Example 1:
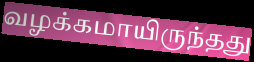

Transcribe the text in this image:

வழக்கமாயிருந்தது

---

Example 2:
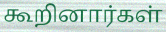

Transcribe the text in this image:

கூறினார்கள்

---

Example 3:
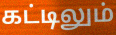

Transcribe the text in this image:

கட்டிலும்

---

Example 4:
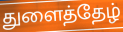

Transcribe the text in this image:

துளைத்தேழ்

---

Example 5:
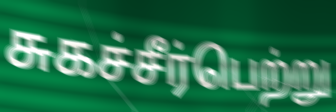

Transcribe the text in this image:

சுகச்சீர்பெற்று